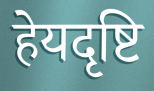
हेयदृष्टि